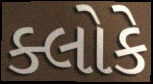
ક્લોકે